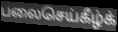
பலைசெய்கீழ்க்